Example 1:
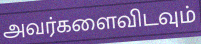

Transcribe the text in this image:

அவர்களைவிடவும்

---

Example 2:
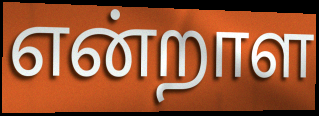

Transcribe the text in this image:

என்றாள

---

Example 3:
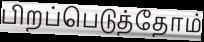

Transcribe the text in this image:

பிறப்பெடுத்தோம்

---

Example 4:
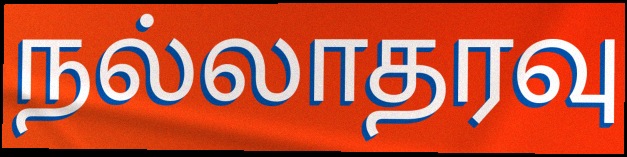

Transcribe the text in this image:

நல்லாதரவு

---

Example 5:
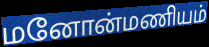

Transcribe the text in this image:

மனோன்மணியம்